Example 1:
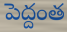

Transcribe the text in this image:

పెద్దంత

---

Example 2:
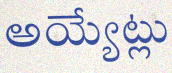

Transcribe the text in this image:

అయ్యేట్లు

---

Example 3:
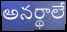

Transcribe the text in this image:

అనర్థాలే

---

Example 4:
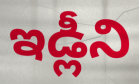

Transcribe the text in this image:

ఇడ్లీని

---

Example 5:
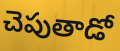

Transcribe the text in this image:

చెపుతాడో